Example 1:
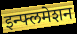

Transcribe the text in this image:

इन्फ्लमेशन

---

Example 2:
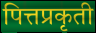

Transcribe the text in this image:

पित्तप्रकृती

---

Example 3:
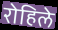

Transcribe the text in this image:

रोहिले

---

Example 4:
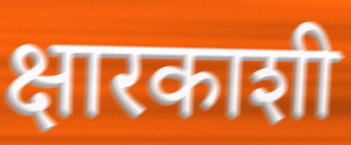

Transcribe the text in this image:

क्षारकाशी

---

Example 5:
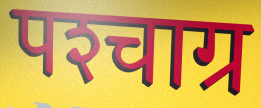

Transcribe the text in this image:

पश्चाग्र